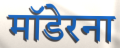
मॉडेरना